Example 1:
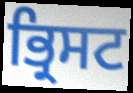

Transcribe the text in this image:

ਭ੍ਰਿਸਟ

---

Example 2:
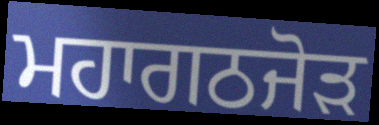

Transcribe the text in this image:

ਮਹਾਗਠਜੋੜ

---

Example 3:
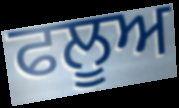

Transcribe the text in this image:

ਫਲੂਅ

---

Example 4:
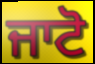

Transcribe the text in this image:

ਜਾਟੋ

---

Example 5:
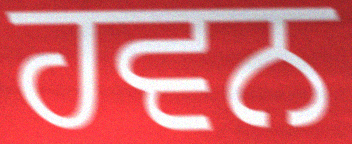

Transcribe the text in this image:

ਹਵਨ